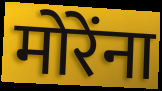
मोरेंना